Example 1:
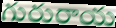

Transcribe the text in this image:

గురురాయ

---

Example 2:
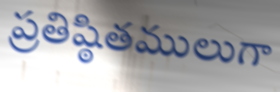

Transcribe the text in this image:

ప్రతిష్ఠితములుగా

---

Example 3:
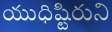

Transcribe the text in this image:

యుధిష్టిరుని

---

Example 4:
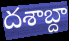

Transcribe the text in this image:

దశాబ్దా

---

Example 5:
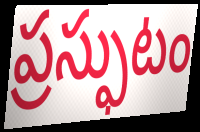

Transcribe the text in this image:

ప్రస్ఫుటం